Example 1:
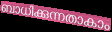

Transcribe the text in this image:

ബാധിക്കുന്നതാകാം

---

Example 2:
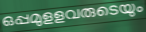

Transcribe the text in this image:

ഒപ്പമുളളവരുടെയും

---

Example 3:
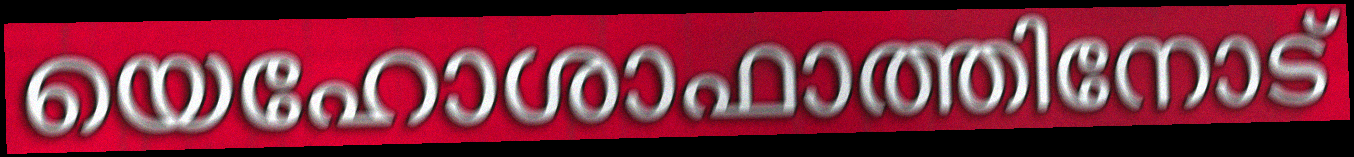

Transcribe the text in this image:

യെഹോശാഫാത്തിനോട്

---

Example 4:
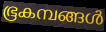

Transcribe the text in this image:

ഭൂകമ്പങ്ങൾ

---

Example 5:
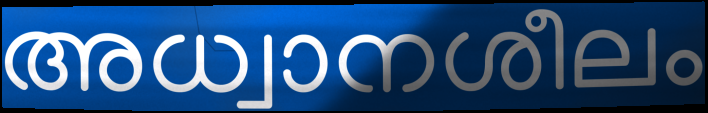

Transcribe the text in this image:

അധ്വാനശീലം